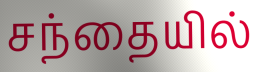
சந்தையில்